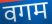
वगम